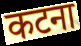
कटना